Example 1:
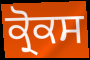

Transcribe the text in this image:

ਕ੍ਰੋਕਸ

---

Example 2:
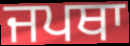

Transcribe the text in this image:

ਜਪਥਾ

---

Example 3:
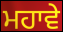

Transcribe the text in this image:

ਮਹਾਵੇ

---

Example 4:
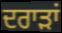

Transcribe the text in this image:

ਦਰਾੜਾਂ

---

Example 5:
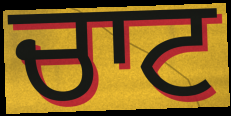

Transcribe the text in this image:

ਚਾਟ